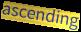
ascending